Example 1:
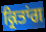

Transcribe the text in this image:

ਕ੍ਰਿਤਾਂਗ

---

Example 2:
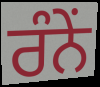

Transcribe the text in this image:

ਰੰਨੇਂ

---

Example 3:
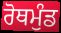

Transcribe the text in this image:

ਰੋਥਮੁੰਡ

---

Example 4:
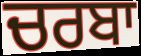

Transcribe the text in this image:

ਚਰਬਾ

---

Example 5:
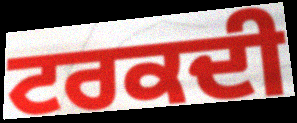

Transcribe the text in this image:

ਟਰਕਦੀ